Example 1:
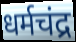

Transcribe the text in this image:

धर्मचंद्र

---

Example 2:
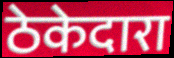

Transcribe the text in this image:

ठेकेदारा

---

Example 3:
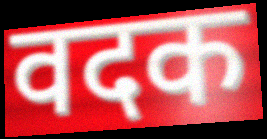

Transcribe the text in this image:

वदक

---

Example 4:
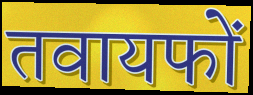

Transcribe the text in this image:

तवायफों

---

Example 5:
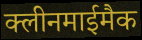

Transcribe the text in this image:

क्लीनमाईमैक